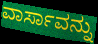
ವಾರ್ಸಾವನ್ನು